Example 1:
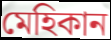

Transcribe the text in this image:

মেহিকান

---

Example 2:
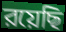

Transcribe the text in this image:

রয়েছি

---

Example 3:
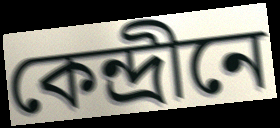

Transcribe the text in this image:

কেন্দ্রীনে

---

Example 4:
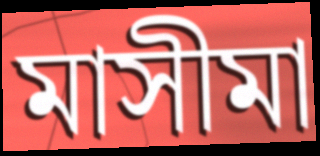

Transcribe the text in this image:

মাসীমা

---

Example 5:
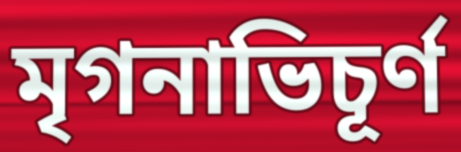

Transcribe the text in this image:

মৃগনাভিচূর্ণ